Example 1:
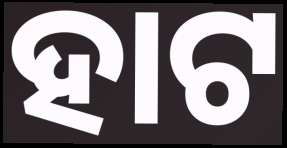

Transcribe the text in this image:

ହାଟ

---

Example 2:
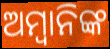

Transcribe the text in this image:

ଅମ୍ବାନିଙ୍କ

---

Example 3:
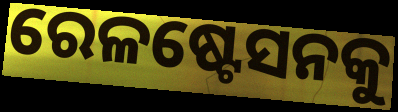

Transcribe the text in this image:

ରେଳଷ୍ଟେସନକୁ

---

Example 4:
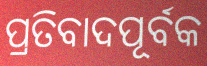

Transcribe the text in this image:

ପ୍ରତିବାଦପୂର୍ବକ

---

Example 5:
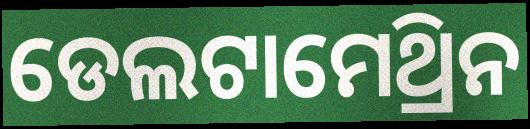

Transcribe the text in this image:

ଡେଲଟାମେଥ୍ରିନ